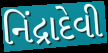
નિંદ્રાદેવી